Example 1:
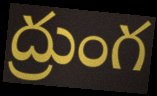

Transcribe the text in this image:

ద్రుంగ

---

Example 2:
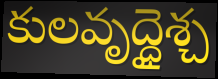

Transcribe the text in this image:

కులవృద్ధైశ్చ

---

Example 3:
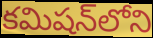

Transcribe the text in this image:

కమిషన్‌లోని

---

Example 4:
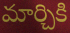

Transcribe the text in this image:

మార్చికి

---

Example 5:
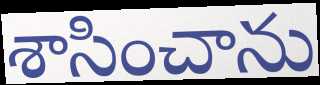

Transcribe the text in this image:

శాసించాను